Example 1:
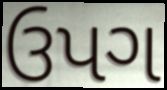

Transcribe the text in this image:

ઉપગ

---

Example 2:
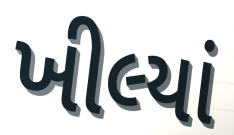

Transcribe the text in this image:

ખીલ્યાં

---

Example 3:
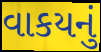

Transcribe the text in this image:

વાકયનું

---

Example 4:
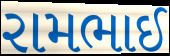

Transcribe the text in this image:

રામભાઈ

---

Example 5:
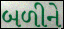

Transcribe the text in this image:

બળીને